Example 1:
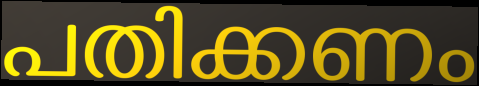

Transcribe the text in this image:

പതിക്കണം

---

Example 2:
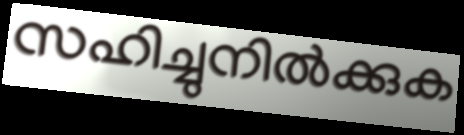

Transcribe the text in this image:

സഹിച്ചുനിൽക്കുക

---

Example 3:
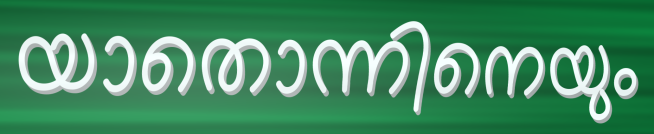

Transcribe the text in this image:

യാതൊന്നിനെയും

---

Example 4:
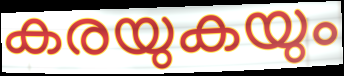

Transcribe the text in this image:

കരയുകയും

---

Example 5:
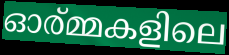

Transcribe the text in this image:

ഓര്മ്മകളിലെ